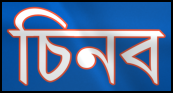
চিনব